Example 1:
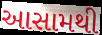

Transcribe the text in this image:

આસામથી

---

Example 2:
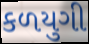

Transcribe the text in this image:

કળયુગી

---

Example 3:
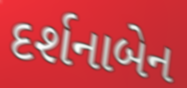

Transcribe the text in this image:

દર્શનાબેન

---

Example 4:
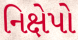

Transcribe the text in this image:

નિક્ષેપો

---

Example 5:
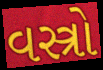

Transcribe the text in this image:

વસ્ત્રો